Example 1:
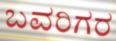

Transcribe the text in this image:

ಬವರಿಗರ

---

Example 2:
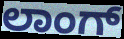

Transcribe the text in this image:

ಲಾಂಗ್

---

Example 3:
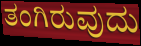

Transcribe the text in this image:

ತಂಗಿರುವುದು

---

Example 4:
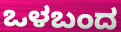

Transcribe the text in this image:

ಒಳಬಂದ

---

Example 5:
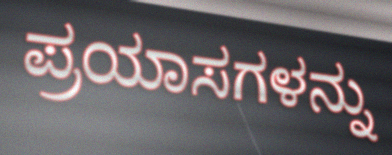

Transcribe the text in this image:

ಪ್ರಯಾಸಗಳನ್ನು